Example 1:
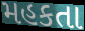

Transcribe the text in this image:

મહકતા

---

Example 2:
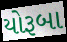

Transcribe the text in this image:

યોરૂબા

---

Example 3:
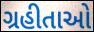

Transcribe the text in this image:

ગ્રહીતાઓ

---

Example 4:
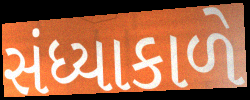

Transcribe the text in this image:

સંધ્યાકાળે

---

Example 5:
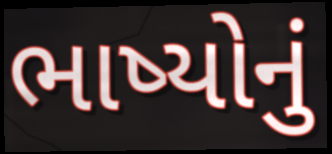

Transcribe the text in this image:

ભાષ્યોનું